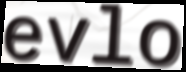
evlo